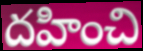
దహించి